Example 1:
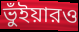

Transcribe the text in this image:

ভুঁইয়ারও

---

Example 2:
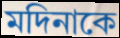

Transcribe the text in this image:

মদিনাকে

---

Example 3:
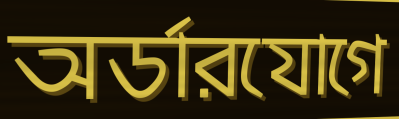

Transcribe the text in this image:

অর্ডারযোগে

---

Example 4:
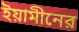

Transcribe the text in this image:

ইয়ামীনের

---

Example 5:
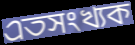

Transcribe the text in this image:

এতসংখ্যক